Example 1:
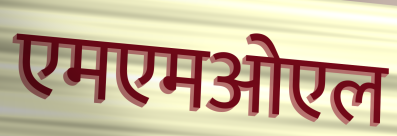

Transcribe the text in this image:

एमएमओएल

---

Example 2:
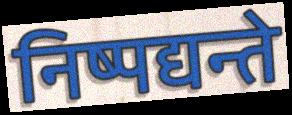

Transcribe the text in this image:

निष्पद्यन्ते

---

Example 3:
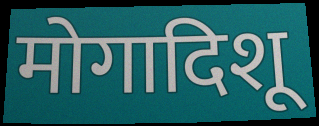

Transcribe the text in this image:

मोगादिशू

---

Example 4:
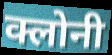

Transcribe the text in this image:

क्लोनी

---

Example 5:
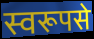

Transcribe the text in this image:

स्वरूपसे